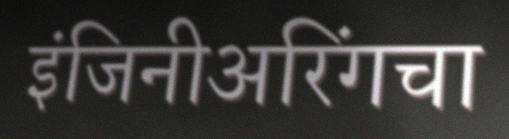
इंजिनीअरिंगचा